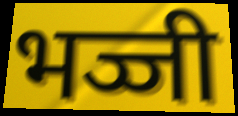
भज्जी